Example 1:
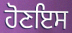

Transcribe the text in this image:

ਹੋਣਇਸ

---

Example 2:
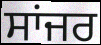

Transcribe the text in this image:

ਸਾਂਜਰ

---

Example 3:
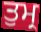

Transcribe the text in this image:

ਤੁਮ੍ਰ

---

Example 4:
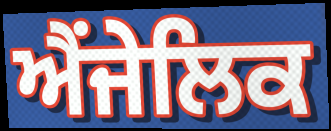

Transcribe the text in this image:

ਐਂਜੇਲਿਕ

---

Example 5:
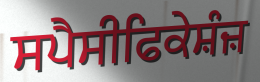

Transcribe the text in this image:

ਸਪੈਸੀਫਿਕੇਸ਼ੰਜ਼